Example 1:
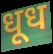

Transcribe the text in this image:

धूध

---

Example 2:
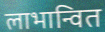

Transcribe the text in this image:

लाभान्वित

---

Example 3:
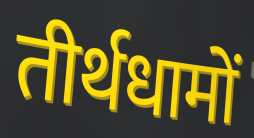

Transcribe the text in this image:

तीर्थधामों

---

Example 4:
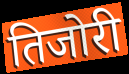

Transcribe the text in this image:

तिजोरी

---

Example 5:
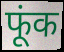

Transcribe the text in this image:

फूंक